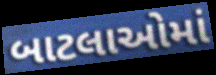
બાટલાઓમાં